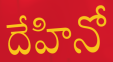
దేహినో